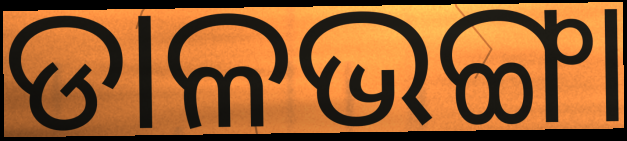
ଡାଳଭଙ୍ଗା